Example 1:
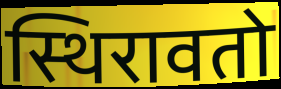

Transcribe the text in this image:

स्थिरावतो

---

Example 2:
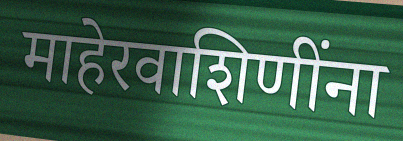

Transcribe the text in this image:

माहेरवाशिणींना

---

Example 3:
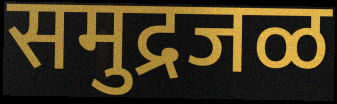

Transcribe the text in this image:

समुद्रजळ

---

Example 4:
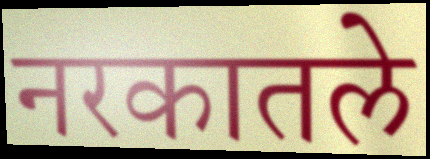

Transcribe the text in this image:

नरकातले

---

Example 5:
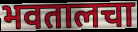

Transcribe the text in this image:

भवतालचा